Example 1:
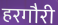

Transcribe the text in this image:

हरगौरी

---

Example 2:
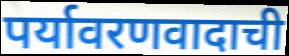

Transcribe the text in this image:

पर्यावरणवादाची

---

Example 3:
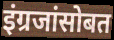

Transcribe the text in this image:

इंग्रजांसोबत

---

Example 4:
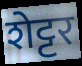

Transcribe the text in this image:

शेट्टर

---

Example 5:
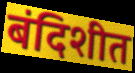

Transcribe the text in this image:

बंदिशीत